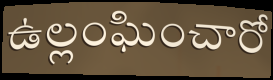
ఉల్లంఘించారో